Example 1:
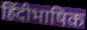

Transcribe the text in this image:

हिंदीभाषिक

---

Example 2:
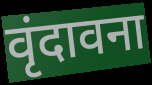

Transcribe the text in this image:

वृंदावना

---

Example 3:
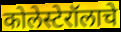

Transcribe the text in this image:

कोलेस्टेरॉलाचे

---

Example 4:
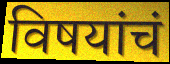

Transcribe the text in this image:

विषयांचं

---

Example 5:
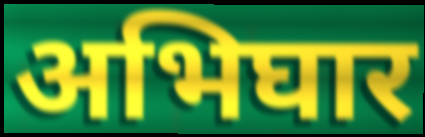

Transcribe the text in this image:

अभिघार